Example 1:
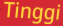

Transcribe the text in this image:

Tinggi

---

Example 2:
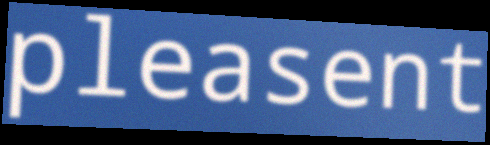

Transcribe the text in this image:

pleasent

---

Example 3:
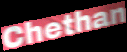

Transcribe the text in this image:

Chethan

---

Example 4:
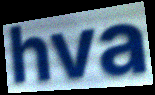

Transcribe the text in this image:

hva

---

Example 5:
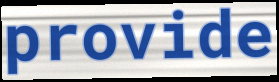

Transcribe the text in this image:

provide